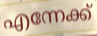
എന്നേക്ക്